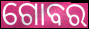
ଗୋବର